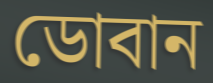
ডোবান